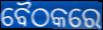
ବୈଠକରେ